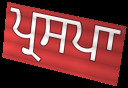
ਪ੍ਰਸਪਾ